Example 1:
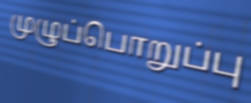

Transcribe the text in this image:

முழுப்பொறுப்பு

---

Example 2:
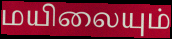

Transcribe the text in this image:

மயிலையும்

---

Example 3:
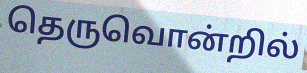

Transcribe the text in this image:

தெருவொன்றில்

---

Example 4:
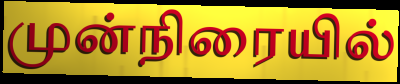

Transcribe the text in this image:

முன்நிரையில்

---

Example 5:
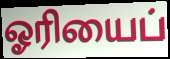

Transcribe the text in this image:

ஓரியைப்